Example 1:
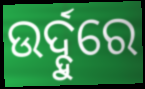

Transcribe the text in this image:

ଉର୍ଦ୍ଦୁରେ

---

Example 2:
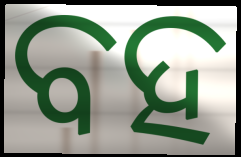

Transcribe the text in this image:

ବହ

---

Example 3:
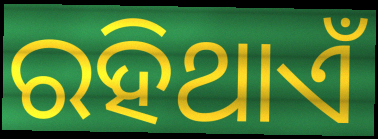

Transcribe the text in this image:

ରହିଥାଏଁ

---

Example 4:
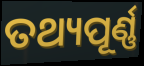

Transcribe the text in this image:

ତଥ୍ୟପୂର୍ଣ୍ଣ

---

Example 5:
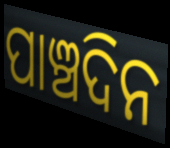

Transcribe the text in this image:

ପାଞ୍ଚଦିନ